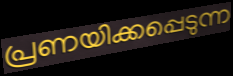
പ്രണയിക്കപ്പെടുന്ന